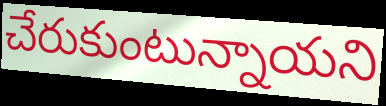
చేరుకుంటున్నాయని